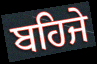
ਬਹਿਜੇ